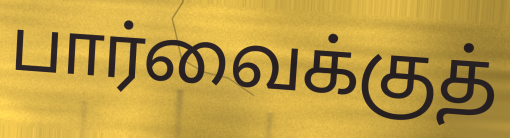
பார்வைக்குத்